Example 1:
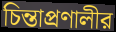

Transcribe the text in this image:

চিন্তাপ্রণালীর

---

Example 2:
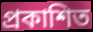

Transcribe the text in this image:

প্রকাশিত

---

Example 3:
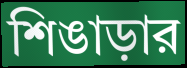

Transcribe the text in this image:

শিঙাড়ার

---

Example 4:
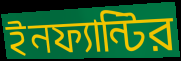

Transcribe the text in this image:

ইনফ্যান্টির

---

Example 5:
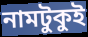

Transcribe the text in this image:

নামটুকুই